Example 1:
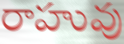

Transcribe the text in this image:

రాహువు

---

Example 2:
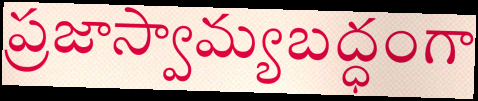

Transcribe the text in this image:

ప్రజాస్వామ్యబద్ధంగా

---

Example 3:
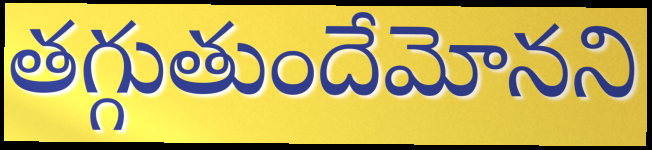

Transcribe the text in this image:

తగ్గుతుందేమోనని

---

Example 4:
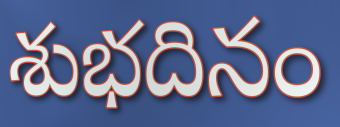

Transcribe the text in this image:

శుభదినం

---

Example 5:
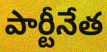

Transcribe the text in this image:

పార్టీనేత